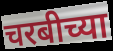
चरबीच्या